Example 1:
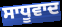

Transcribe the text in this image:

ਸਾਧੂਵਾਦ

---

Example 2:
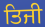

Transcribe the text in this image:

ਤਿਜੀ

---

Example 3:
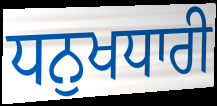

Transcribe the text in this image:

ਧਨੁਖਧਾਰੀ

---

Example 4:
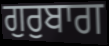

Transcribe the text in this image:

ਗੁਰੁਬਾਗ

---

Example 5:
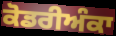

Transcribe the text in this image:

ਕੋਡਰੀਅੰਕਾ